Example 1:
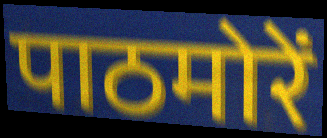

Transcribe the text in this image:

पाठमोरें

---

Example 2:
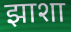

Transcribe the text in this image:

झाशा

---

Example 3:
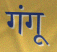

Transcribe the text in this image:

गंगू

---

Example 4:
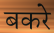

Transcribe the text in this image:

बकरे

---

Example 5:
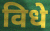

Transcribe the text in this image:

विधे